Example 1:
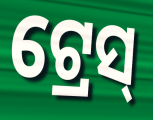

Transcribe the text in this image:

ଟ୍ରେସ୍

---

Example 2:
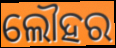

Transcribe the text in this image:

ଲୌହର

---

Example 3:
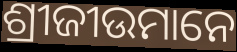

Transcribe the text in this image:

ଶ୍ରୀଜୀଉମାନେ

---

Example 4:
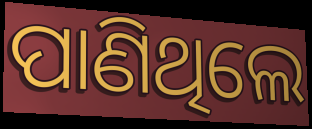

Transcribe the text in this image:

ପାଣିଥିଲେ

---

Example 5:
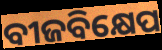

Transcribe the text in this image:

ବୀଜବିକ୍ଷେପ